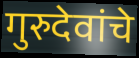
गुरुदेवांचे